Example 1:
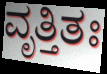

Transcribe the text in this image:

ವೃತ್ತಿತಃ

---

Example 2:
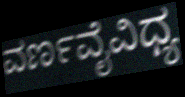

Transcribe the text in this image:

ವರ್ಣವೈವಿಧ್ಯ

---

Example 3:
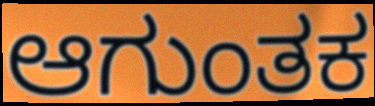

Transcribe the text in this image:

ಆಗುಂತಕ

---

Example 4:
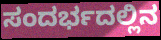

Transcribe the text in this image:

ಸಂದರ್ಭದಲ್ಲಿನ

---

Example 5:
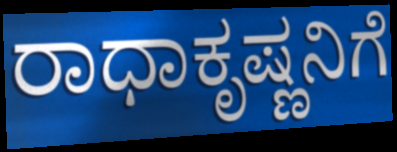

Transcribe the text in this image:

ರಾಧಾಕೃಷ್ಣನಿಗೆ